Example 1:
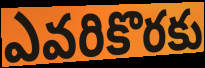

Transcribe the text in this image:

ఎవరికొరకు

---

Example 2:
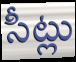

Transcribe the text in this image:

సీట్లు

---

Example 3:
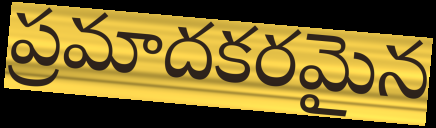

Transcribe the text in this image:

ప్రమాదకరమైన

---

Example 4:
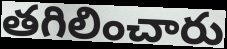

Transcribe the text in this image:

తగిలించారు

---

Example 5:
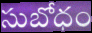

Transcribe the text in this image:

సుబోధం